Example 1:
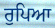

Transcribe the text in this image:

ਰੁਪਿਆ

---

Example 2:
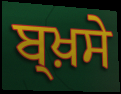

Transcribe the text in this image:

ਬ੍ਖ਼ਸੇ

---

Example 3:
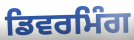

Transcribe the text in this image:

ਡਿਵਰਮਿੰਗ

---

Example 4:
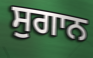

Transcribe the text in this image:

ਸੁਗਾਨ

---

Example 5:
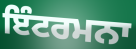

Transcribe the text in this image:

ਇੰਟਰਮਨਾ